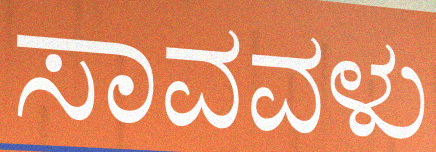
ಸಾವವಳು